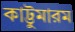
কাট্টুমারম